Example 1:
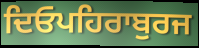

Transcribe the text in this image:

ਦਿਓਪਹਿਰਾਬੁਰਜ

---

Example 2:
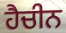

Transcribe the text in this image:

ਹੈਚੀਨ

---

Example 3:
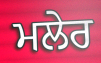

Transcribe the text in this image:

ਮਲੇਰ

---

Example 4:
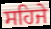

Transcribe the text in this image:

ਸਹਿਜੇ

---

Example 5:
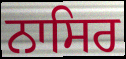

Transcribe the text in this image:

ਨਾਸਿਰ